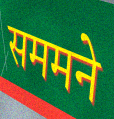
सममने